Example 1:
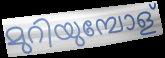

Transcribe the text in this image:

മുറിയുമ്പോള്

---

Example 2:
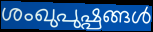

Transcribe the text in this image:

ശംഖുപുഷ്പങ്ങൾ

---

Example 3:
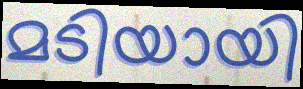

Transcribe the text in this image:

മടിയായി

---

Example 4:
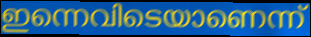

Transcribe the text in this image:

ഇന്നെവിടെയാണെന്ന്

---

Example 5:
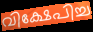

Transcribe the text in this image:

വിക്ഷേപിച്ച